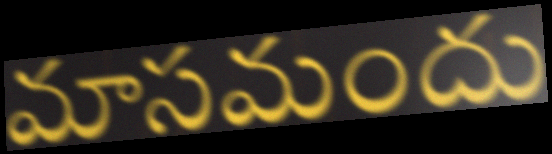
మాసమందు